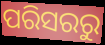
ପରିସରରୁ